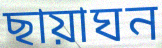
ছায়াঘন